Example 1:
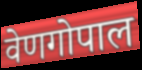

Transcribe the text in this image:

वेणगोपाल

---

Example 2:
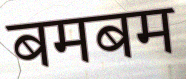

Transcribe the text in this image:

बमबम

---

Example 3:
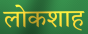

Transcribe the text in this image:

लोकशाह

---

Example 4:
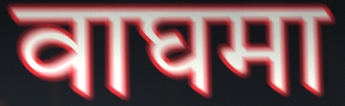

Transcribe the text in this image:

वाघमा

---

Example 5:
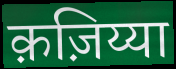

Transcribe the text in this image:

क़ज़िय्या